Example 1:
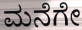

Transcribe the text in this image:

ಮನೆಗೇ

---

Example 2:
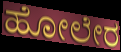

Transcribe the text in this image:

ಹೋಲೇರ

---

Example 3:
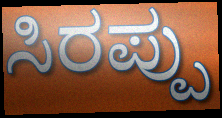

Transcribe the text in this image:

ಸಿರಪ್ಪು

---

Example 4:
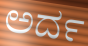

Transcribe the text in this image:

ಅರ್ದ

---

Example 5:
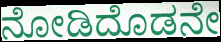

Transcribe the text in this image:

ನೋಡಿದೊಡನೇ